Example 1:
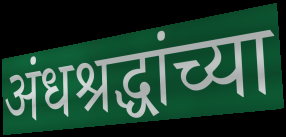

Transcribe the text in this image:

अंधश्रद्धांच्या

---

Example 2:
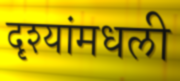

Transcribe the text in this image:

दृश्यांमधली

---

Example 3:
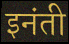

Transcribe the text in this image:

इनंती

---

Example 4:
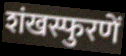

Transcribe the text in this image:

शंखस्फुरणें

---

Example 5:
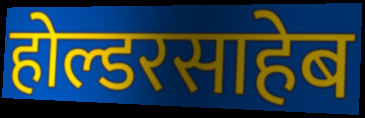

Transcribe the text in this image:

होल्डरसाहेब